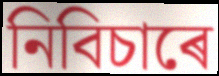
নিবিচাৰে